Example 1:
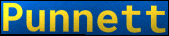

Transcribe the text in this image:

Punnett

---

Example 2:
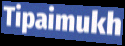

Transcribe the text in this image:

Tipaimukh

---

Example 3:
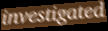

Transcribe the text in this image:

investigated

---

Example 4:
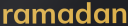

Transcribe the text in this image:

ramadan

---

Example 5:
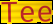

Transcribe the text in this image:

Tee